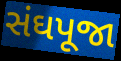
સંઘપૂજા